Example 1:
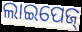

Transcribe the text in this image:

ଲାଇପେଜ୍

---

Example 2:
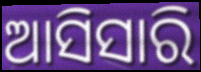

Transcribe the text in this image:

ଆସିସାରି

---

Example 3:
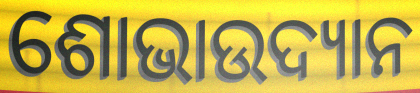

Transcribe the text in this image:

ଶୋଭାଉଦ୍ୟାନ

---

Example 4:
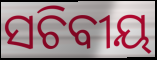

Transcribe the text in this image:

ସଚିବୀୟ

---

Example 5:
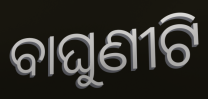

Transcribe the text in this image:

ବାଘୁଣୀଟି